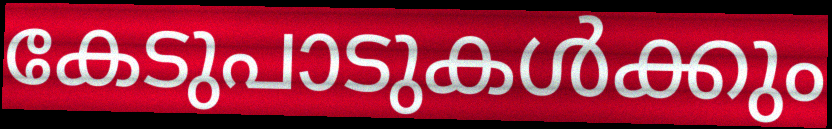
കേടുപാടുകൾക്കും